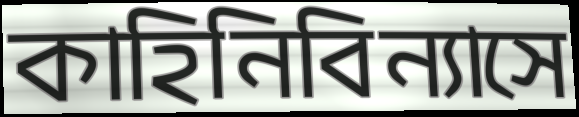
কাহিনিবিন্যাসে